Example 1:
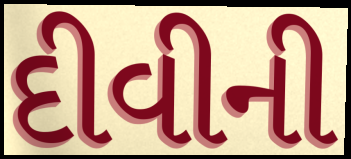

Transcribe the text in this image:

દીવીની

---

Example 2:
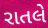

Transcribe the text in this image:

રાતલે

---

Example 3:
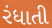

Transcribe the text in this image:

રંધાતી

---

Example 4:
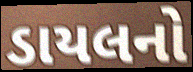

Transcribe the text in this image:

ડાયલનો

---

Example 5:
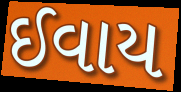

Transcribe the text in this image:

ઈવાય